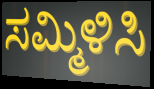
ಸಮ್ಮಿಳಿಸಿ